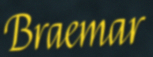
Braemar